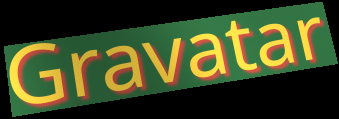
Gravatar